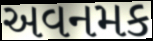
અવનમક